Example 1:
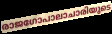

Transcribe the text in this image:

രാജഗോപാലാചാരിയുടെ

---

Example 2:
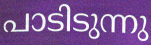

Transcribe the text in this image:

പാടിടുന്നു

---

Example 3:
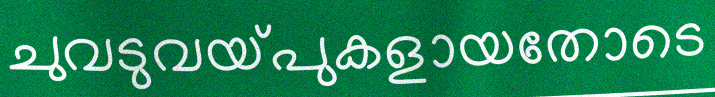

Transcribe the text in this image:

ചുവടുവയ്‌പുകളായതോടെ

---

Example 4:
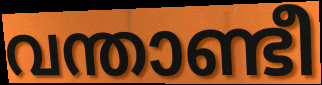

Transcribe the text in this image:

വന്താണ്ടീ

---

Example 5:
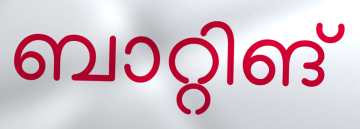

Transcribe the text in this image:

ബാറ്റിങ്